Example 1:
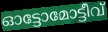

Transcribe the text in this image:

ഓട്ടോമോട്ടീവ്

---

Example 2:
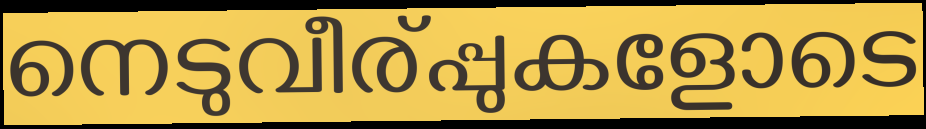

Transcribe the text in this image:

നെടുവീര്പ്പുകളോടെ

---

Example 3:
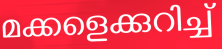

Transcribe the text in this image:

മക്കളെക്കുറിച്ച്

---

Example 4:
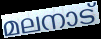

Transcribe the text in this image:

മലനാട്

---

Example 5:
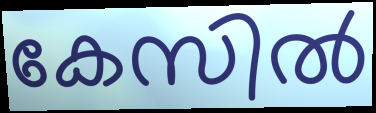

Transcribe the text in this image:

കേസിൽ